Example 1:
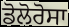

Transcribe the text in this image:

ਡੋਲੋਰੋਸਾ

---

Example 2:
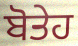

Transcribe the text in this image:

ਬੋਤੇਹ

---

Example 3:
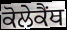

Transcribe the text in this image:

ਕੋਲੇਕੈਂਥ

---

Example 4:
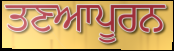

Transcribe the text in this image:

ਤਣਆਪੂਰਨ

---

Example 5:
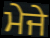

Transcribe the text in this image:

ਮੇਜੇ